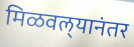
मिळवल्यानंतर